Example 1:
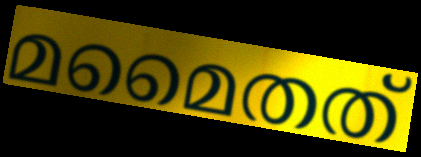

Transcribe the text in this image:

മമൈതത്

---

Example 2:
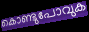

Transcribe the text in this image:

കൊണ്ടുപോവുക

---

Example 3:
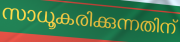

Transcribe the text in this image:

സാധൂകരിക്കുന്നതിന്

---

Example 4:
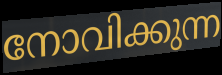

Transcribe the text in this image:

നോവിക്കുന്ന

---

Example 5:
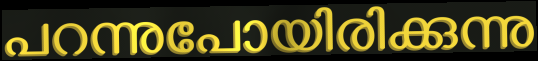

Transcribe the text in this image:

പറന്നുപോയിരിക്കുന്നു